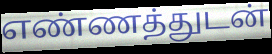
எண்ணத்துடன்